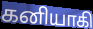
கனியாகி